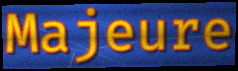
Majeure